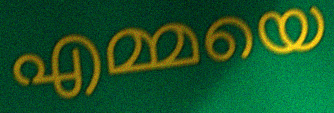
എമ്മയെ